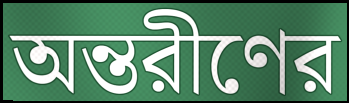
অন্তরীণের